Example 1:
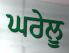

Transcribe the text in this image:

ਘਰੇਲੂ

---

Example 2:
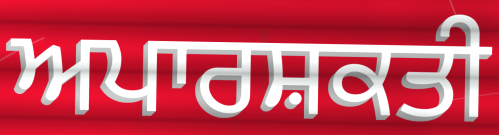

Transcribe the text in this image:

ਅਪਾਰਸ਼ਕਤੀ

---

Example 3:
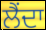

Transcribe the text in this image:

ਲੈਂਦਾ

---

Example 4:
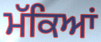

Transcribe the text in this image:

ਮੱਕਿਆਂ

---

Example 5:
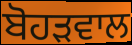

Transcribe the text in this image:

ਬੋਹੜਵਾਲ